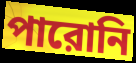
পারোনি